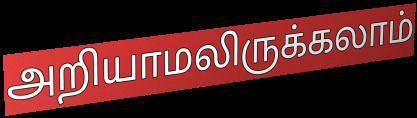
அறியாமலிருக்கலாம்